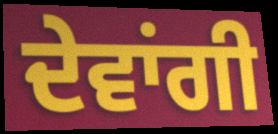
ਦੇਵਾਂਗੀ